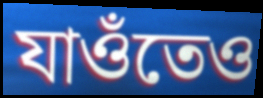
যাওঁতেও